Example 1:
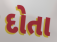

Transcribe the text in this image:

દોતા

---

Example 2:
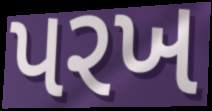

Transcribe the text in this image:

પરખ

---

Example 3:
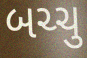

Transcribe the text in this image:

બચ્ચુ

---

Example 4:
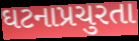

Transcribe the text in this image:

ઘટનાપ્રચુરતા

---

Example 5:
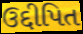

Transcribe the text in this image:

ઉદ્દીપિત